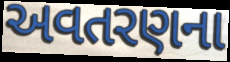
અવતરણના